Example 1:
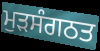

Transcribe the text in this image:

ਮੁੜਸੰਗਠਤ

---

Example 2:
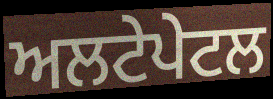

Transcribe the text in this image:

ਅਲਟੇਪੇਟਲ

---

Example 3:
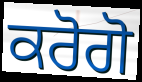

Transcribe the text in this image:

ਕਰੋਗੋ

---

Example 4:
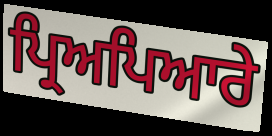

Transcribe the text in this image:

ਪ੍ਰਿਅਪਿਆਰੇ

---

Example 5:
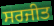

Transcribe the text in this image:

ਸਰਜੀਤ